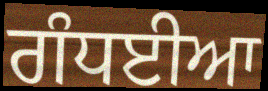
ਗੰਧਈਆ